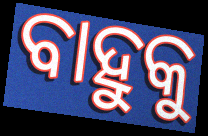
ବାହୁକୁ